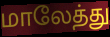
மாலேத்து